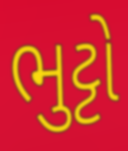
ભુટ્ટો